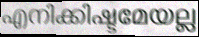
എനിക്കിഷ്ടമേയല്ല